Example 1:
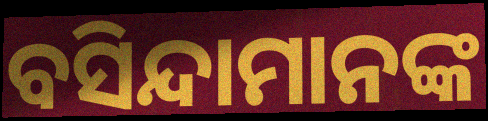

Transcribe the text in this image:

ବସିନ୍ଦାମାନଙ୍କ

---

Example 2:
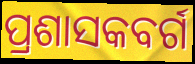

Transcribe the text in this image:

ପ୍ରଶାସକବର୍ଗ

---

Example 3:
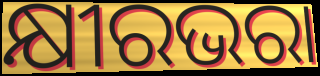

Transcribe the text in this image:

କ୍ଷୀରଭରା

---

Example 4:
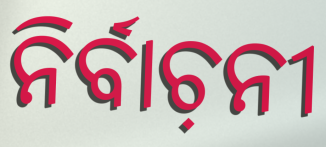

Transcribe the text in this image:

ନିର୍ବାଚ଼ନୀ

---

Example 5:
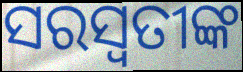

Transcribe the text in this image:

ସରସ୍ବତୀଙ୍କ